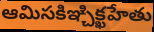
ఆమిసకిఞ్చిక్ఖహేతు